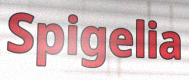
Spigelia